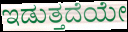
ಇಡುತ್ತದೆಯೇ